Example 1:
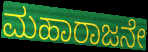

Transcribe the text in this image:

ಮಹಾರಾಜನೇ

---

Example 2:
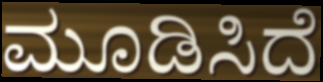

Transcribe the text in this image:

ಮೂಡಿಸಿದೆ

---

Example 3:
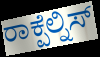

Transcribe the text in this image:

ರಾಕ್ಪೆಲ್ನಿಸ್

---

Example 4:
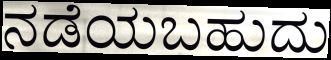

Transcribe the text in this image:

ನಡೆಯಬಹುದು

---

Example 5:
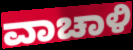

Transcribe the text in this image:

ವಾಚಾಳಿ